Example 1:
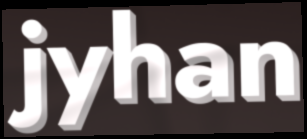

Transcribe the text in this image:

jyhan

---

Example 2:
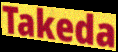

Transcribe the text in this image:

Takeda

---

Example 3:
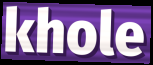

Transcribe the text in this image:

khole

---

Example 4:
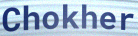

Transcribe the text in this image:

Chokher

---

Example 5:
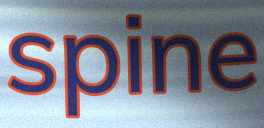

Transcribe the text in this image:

spine